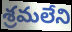
శ్రమలేని